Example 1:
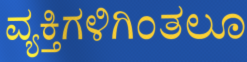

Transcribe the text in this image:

ವ್ಯಕ್ತಿಗಳಿಗಿಂತಲೂ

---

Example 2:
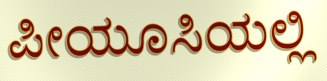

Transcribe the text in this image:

ಪೀಯೂಸಿಯಲ್ಲಿ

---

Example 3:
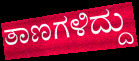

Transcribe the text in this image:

ತಾಣಗಳಿದ್ದು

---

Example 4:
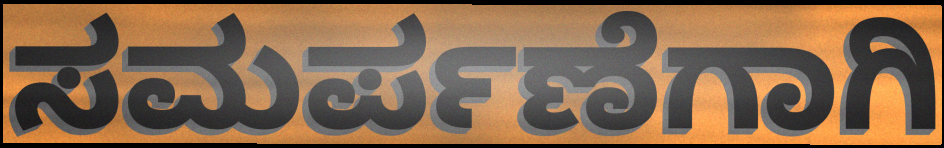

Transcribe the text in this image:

ಸಮರ್ಪಣೆಗಾಗಿ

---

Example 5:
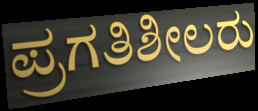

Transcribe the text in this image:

ಪ್ರಗತಿಶೀಲರು